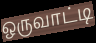
ஒருவாட்டி